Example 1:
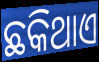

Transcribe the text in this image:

ଛକିଥାଏ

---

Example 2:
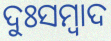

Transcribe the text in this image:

ଦୁଃସମ୍ବାଦ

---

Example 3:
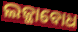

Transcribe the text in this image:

ଲଜ୍ଜାବୋଧ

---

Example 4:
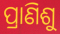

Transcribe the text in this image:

ପ୍ରାଣିଶୁ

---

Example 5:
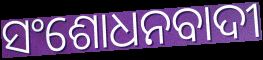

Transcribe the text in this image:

ସଂଶୋଧନବାଦୀ